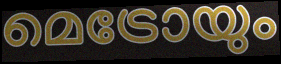
മെട്രോയും